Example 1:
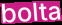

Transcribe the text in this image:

bolta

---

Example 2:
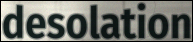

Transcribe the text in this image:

desolation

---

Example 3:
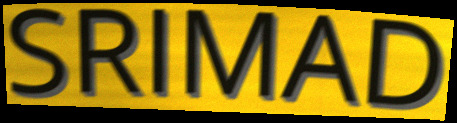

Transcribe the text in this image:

SRIMAD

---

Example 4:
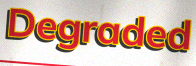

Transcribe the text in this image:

Degraded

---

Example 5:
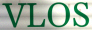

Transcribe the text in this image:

VLOS